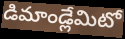
డిమాండ్లేమిటో